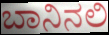
ಬಾನಿನಲಿ